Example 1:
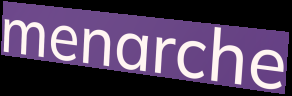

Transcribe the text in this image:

menarche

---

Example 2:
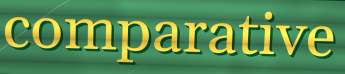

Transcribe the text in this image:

comparative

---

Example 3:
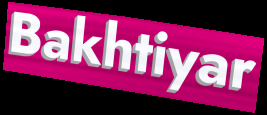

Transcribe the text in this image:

Bakhtiyar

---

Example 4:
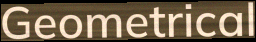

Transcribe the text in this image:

Geometrical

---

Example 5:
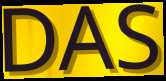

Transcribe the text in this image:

DAS